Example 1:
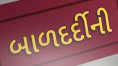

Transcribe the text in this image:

બાળદર્દીની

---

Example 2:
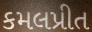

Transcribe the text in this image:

કમલપ્રીત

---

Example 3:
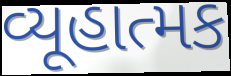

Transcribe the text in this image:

વ્યૂહાત્મક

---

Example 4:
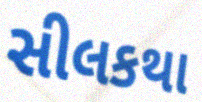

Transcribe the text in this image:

સીલકથા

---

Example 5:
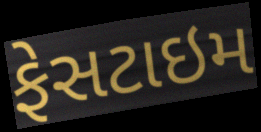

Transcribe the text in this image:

ફેસટાઇમ